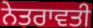
ਨੇਤਰਾਵਤੀ